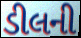
ડીલની